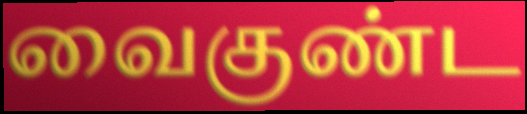
வைகுண்ட